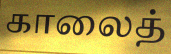
காலைத்